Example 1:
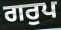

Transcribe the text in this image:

ਗਰੁਪ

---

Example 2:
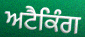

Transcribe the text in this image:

ਅਟੈਕਿੰਗ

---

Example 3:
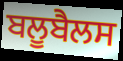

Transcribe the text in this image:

ਬਲੂਬੈਲਸ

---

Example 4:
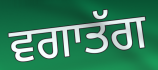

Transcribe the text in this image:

ਵਗਾਤੱਗ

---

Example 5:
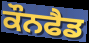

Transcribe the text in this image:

ਕੌਨਫੈਡ